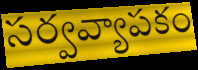
సర్వవ్యాపకం